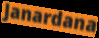
Janardana